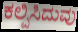
ಕಲ್ಪಿಸಿದುವು